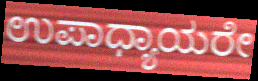
ಉಪಾಧ್ಯಾಯರೇ